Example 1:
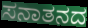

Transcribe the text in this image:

ಸನಾತನದ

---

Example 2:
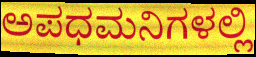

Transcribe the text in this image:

ಅಪಧಮನಿಗಳಲ್ಲಿ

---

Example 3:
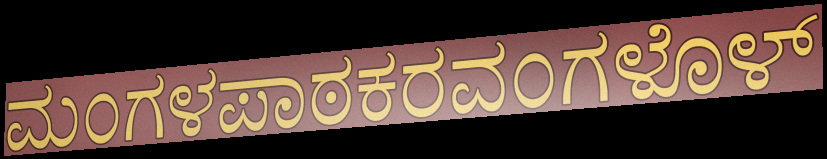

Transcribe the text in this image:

ಮಂಗಳಪಾಠಕರವಂಗಳೊಳ್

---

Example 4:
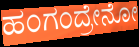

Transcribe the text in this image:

ಹಂಗಂದ್ರೇನೋ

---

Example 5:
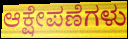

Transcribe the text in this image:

ಆಕ್ಷೇಪಣೆಗಳು